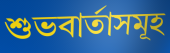
শুভবাৰ্তাসমূহ